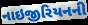
નાઇજીરિયનની